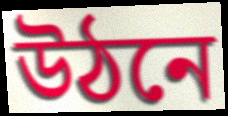
উঠনে